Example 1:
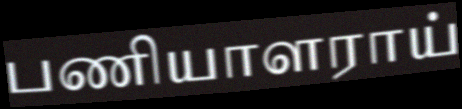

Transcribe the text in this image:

பணியாளராய்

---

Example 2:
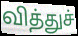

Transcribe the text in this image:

வித்துச்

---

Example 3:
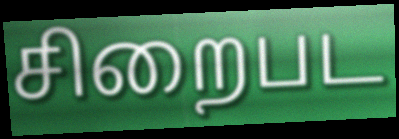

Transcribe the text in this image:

சிறைபட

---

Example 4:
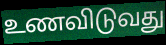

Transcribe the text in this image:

உணவிடுவது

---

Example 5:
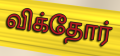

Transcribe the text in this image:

விக்தோர்